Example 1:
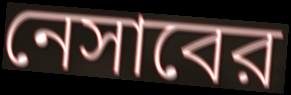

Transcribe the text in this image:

নেসাবের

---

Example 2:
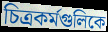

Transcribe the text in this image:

চিত্রকর্মগুলিকে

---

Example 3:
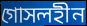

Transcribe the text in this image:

গোসলহীন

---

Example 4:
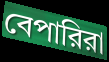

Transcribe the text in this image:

বেপারিরা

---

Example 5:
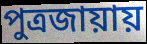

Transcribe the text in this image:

পুত্রজায়ায়